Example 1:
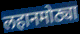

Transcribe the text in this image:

लहानमोठ्या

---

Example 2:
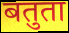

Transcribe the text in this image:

बतुता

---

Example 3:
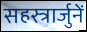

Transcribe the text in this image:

सहस्त्रार्जुनें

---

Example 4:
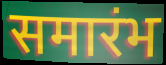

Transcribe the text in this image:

समारंभ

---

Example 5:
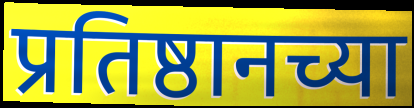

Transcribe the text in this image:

प्रतिष्ठानच्या